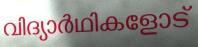
വിദ്യാർഥികളോട്